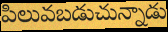
పిలువబడుచున్నాడు